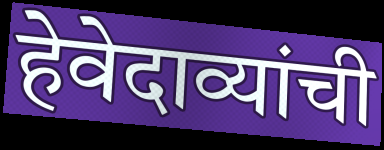
हेवेदाव्यांची